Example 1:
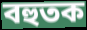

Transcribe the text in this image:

বহুতক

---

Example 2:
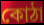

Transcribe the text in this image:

কোঠা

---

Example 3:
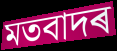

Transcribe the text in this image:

মতবাদৰ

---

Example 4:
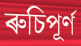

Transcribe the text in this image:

ৰুচিপূৰ্ণ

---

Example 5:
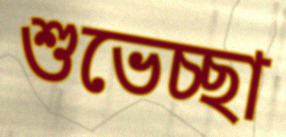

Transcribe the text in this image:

শুভেচ্ছা